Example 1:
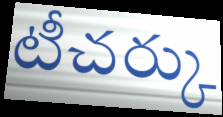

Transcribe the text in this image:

టీచర్కు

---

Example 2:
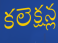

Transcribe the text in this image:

కలెక్షన్ల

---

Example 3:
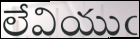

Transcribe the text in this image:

లేవియుఁ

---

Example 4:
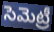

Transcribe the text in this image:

సెమెట్రీ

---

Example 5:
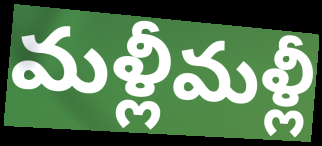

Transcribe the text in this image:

మళ్లీమళ్లీ